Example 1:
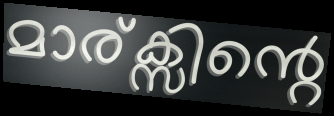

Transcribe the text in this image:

മാര്ക്സിന്റെ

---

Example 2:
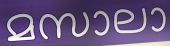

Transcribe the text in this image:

മസാലാ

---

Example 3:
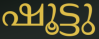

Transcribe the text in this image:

ഷൂട്ടു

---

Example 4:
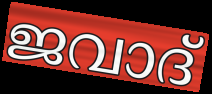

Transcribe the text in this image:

ജവാദ്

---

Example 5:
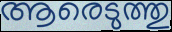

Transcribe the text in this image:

ആരെടുത്തു